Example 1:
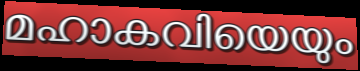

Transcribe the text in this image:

മഹാകവിയെയും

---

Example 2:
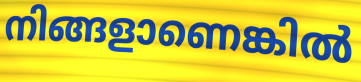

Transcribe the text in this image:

നിങ്ങളാണെങ്കിൽ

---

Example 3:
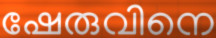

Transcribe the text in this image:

ഷേരുവിനെ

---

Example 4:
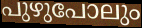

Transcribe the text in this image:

പുഴുപോലും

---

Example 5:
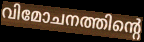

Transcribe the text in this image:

വിമോചനത്തിന്റെ